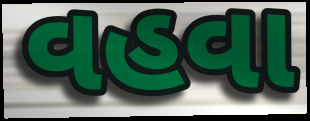
વહવા